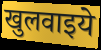
खुलवाइये